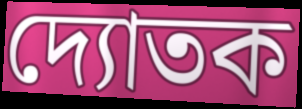
দ্যোতক